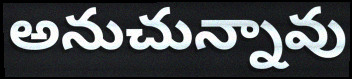
అనుచున్నావు